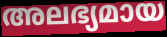
അലഭ്യമായ